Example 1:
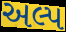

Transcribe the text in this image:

અલ્પ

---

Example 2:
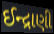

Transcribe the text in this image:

ઈન્દ્રાણી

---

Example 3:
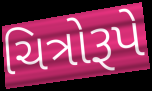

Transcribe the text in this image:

ચિત્રોરૂપે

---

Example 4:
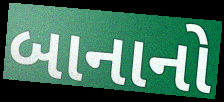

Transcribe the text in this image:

બાનાનો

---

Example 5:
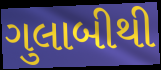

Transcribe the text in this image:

ગુલાબીથી